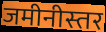
जमीनीस्तर